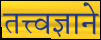
तत्त्वज्ञाने